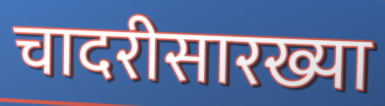
चादरीसारख्या